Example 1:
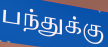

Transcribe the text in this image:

பந்துக்கு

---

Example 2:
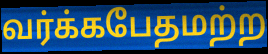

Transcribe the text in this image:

வர்க்கபேதமற்ற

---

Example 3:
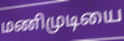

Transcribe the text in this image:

மணிமுடியை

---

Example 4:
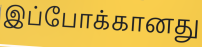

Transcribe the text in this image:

இப்போக்கானது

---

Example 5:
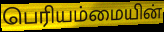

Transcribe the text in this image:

பெரியம்மையின்